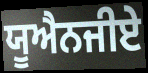
ਯੂਐਨਜੀਏ